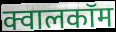
क्वालकॉम